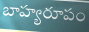
బాహ్యరూపం